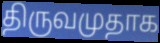
திருவமுதாக